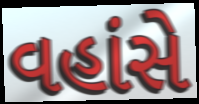
વહાંસે